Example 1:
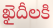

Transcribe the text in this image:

ఖైదీలకి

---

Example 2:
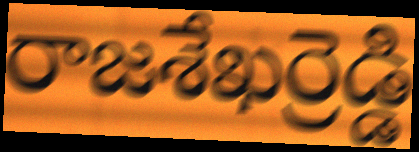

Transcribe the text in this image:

రాజశేఖర్రెడ్డి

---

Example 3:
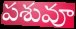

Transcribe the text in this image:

పశువూ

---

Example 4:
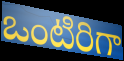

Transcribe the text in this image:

ఒంటిరిగా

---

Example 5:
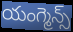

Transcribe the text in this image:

యంగ్మెన్స్